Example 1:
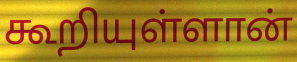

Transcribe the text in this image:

கூறியுள்ளான்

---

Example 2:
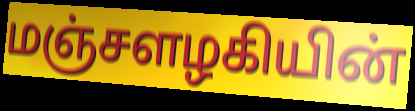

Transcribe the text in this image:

மஞ்சளழகியின்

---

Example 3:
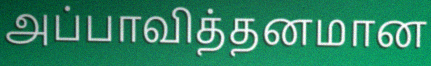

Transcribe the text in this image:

அப்பாவித்தனமான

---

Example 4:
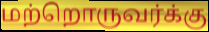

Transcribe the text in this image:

மற்றொருவர்க்கு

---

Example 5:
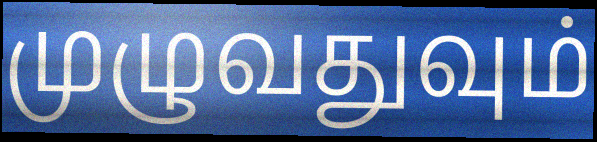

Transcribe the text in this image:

முழுவதுவும்